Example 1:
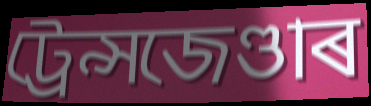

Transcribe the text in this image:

ট্ৰেন্সজেণ্ডাৰ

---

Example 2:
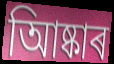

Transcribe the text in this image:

আিষ্কাৰ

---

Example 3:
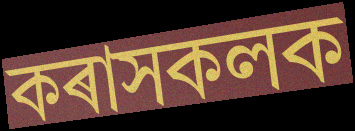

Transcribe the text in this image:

কৰাসকলক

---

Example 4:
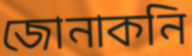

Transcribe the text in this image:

জোনাকনি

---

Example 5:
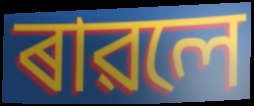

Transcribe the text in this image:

ৰাৱলে